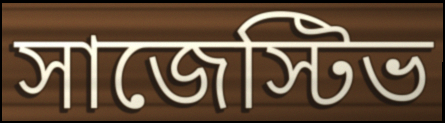
সাজেস্টিভ